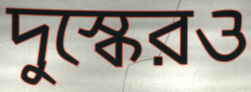
দুস্কেরও